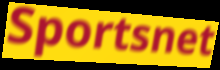
Sportsnet